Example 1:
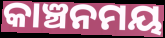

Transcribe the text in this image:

କାଞ୍ଚନମୟ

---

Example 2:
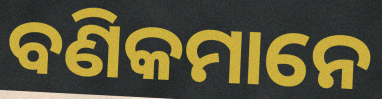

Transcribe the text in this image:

ବଣିକମାନେ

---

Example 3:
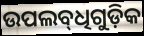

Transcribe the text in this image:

ଉପଲବ୍‌ଧିଗୁଡ଼ିକ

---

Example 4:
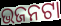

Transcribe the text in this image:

ଭଜନଟା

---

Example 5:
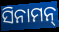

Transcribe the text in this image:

ସିନାମନ୍